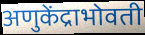
अणुकेंद्राभोवती